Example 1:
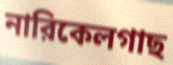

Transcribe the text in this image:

নারিকেলগাছ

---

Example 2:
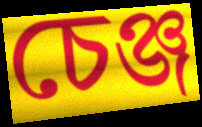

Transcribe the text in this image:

চেঞ্জ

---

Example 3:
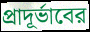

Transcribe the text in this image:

প্রাদূর্ভাবের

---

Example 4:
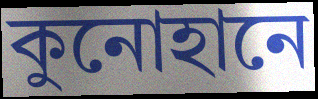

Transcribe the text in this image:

কুনোহানে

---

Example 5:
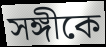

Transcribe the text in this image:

সঙ্গীকে